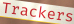
Trackers